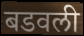
बडवली